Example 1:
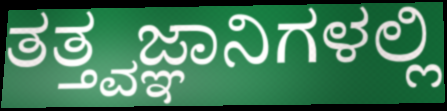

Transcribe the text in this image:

ತತ್ತ್ವಜ್ಞಾನಿಗಳಲ್ಲಿ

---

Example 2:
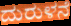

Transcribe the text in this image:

ದುರುಳನೆ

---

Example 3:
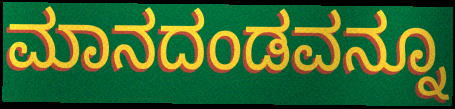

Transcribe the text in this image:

ಮಾನದಂಡವನ್ನೂ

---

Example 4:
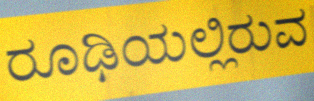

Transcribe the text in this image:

ರೂಢಿಯಲ್ಲಿರುವ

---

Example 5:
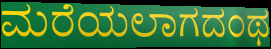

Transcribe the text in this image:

ಮರೆಯಲಾಗದಂಥ